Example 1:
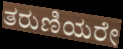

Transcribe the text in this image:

ತರುಣಿಯರೇ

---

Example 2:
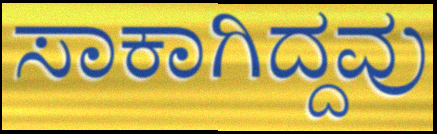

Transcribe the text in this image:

ಸಾಕಾಗಿದ್ದವು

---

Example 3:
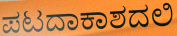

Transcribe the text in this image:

ಪಟದಾಕಾಶದಲಿ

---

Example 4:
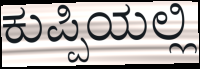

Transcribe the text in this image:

ಕುಪ್ಪಿಯಲ್ಲಿ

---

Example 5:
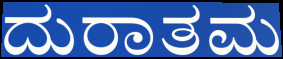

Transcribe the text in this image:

ದುರಾತಮ